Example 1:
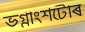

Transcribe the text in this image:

ভগ্নাংশটোৰ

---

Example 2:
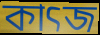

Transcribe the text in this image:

কাৎজ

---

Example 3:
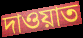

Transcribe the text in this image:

দাওয়াত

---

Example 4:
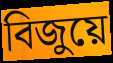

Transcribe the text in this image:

বিজুয়ে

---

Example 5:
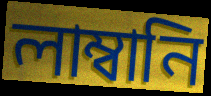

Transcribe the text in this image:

লাম্বানি